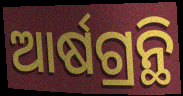
ଆର୍ଷଗ୍ରନ୍ଥି